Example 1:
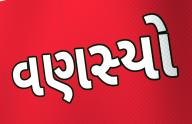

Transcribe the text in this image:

વણસ્યો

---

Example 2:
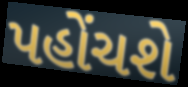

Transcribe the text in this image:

પહોંચશે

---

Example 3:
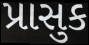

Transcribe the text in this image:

પ્રાસુક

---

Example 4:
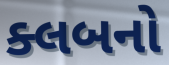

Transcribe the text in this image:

ક્લબનો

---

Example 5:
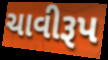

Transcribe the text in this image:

ચાવીરૂપ